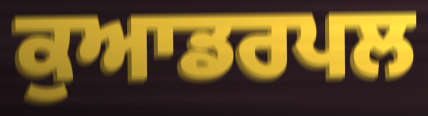
ਕੁਆਡਰਪਲ